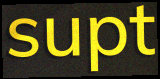
supt